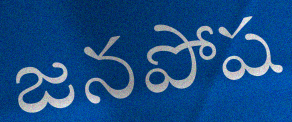
జనపోష